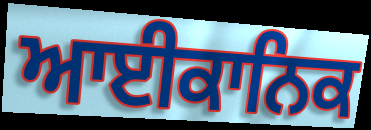
ਆਈਕਾਨਿਕ